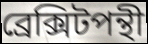
ব্রেক্সিটপন্থী